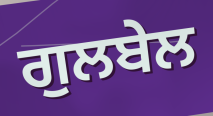
ਗੁਲਬੇਲ